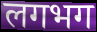
लगभग